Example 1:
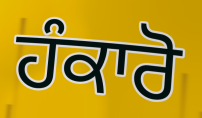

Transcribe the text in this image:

ਹੰਕਾਰੋ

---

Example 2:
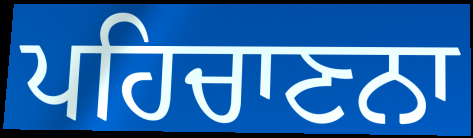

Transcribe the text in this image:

ਪਹਿਚਾਣਨਾ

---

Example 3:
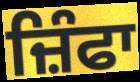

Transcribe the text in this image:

ਜ਼ਿੰਫਾ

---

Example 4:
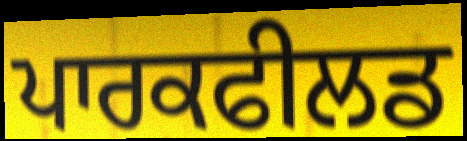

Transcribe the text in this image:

ਪਾਰਕਫੀਲਡ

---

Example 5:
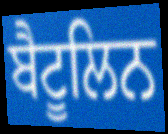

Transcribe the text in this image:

ਬੈਟੂਲਿਨ